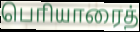
பெரியாரைத்